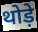
थोड़े